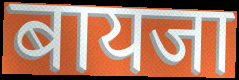
बायजा